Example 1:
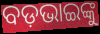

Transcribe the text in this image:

ବଡ଼ଭାଇଙ୍କୁ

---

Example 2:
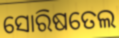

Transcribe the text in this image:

ସୋରିଷତେଲ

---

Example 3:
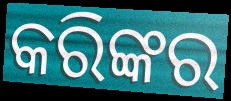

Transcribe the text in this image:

କରିଙ୍କର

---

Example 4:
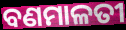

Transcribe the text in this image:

ବଣମାଳତୀ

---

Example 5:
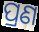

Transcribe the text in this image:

ପ୍ରଣ